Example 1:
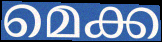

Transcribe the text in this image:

മെക്ക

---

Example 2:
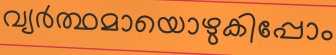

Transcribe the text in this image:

വ്യർത്ഥമായൊഴുകിപ്പോം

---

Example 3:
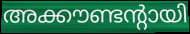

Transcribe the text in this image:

അക്കൗണ്ടന്റായി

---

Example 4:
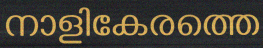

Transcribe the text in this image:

നാളികേരത്തെ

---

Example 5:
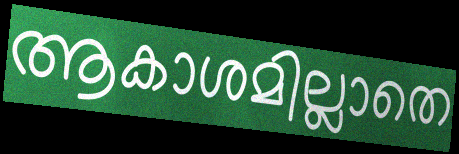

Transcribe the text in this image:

ആകാശമില്ലാതെ